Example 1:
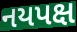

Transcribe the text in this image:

નયપક્ષ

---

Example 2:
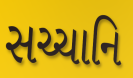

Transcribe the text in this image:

સચ્ચાનિ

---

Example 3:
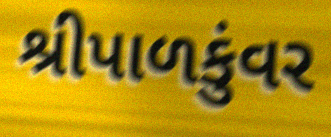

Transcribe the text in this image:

શ્રીપાળકુંવર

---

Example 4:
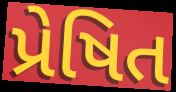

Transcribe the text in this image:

પ્રેષિત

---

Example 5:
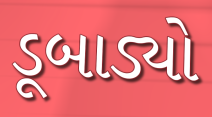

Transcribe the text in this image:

ડૂબાડ્યો